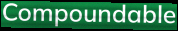
Compoundable